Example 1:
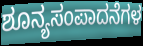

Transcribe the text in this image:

ಶೂನ್ಯಸಂಪಾದನೆಗಳ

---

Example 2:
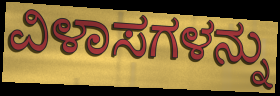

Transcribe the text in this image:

ವಿಳಾಸಗಳನ್ನು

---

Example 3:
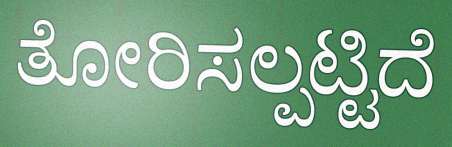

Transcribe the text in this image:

ತೋರಿಸಲ್ಪಟ್ಟಿದೆ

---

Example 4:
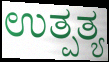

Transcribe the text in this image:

ಉತ್ಪತ್ಯ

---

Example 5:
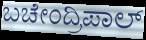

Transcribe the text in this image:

ಬಚೇಂದ್ರಿಪಾಲ್